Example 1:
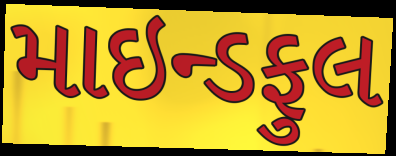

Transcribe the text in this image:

માઇન્ડફુલ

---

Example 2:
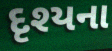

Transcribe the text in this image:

દૃશ્યના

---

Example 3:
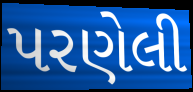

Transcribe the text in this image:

પરણેલી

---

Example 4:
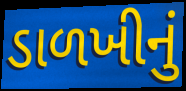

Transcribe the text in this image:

ડાળખીનું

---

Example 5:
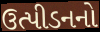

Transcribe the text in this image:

ઉત્પીડનનો